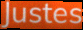
Justes